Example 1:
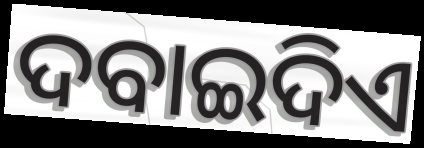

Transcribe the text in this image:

ଦବାଇଦିଏ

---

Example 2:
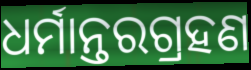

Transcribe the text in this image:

ଧର୍ମାନ୍ତରଗ୍ରହଣ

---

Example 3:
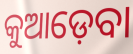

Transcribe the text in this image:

କୁଆଡ଼େବା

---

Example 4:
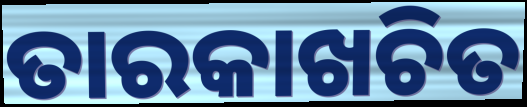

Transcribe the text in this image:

ତାରକାଖଚିତ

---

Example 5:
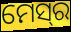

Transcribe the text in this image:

ମେସ୍‌ର